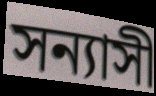
সন্যাসী